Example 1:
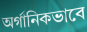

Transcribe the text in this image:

অর্গানিকভাবে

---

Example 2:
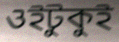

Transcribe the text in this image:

ওইটুকুই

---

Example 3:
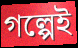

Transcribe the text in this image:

গল্পেই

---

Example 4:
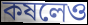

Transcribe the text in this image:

কষলেও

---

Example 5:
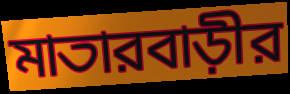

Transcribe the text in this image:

মাতারবাড়ীর